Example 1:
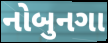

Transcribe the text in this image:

નોબુનગા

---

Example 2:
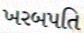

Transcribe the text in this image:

ખરબપતિ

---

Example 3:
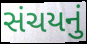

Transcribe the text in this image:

સંચયનું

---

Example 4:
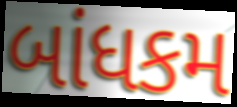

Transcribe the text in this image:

બાંધકમ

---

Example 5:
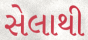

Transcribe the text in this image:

સેલાથી